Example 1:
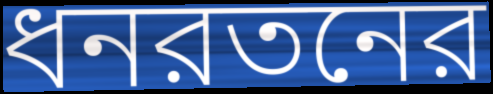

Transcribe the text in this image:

ধনরতনের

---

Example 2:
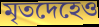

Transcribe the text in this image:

মৃতদেহেও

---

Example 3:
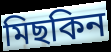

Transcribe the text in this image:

মিছকিন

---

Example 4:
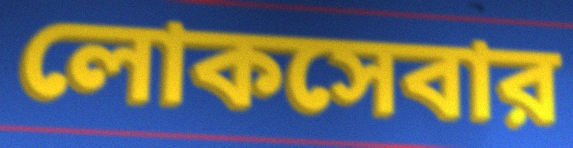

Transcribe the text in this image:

লোকসেবার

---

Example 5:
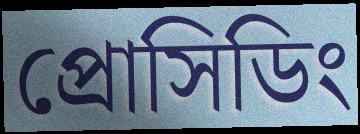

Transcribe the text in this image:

প্রোসিডিং